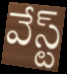
వేస్ట్